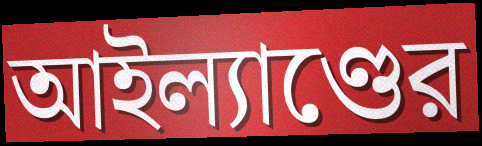
আইল্যাণ্ডের